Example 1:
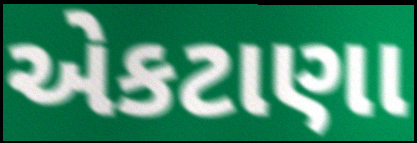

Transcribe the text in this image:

એકટાણા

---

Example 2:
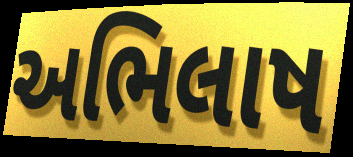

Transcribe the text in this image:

અભિલાષ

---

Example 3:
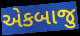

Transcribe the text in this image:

એકબાજુ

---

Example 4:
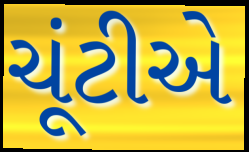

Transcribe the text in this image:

ચૂંટીએ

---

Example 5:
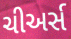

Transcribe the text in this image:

ચીઅર્સ